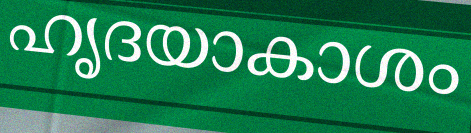
ഹൃദയാകാശം